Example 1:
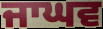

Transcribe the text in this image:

ਜਾਘਵ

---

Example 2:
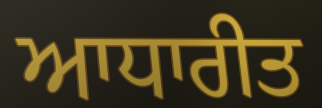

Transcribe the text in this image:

ਆਧਾਰੀਤ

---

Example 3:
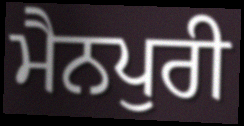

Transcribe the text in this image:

ਮੈਨਪੁਰੀ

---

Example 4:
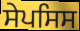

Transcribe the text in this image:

ਸੇਪਸਿਸ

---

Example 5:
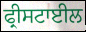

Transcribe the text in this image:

ਫ੍ਰੀਸਟਾਈਲ